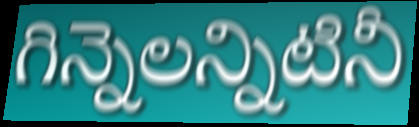
గిన్నెలన్నిటినీ